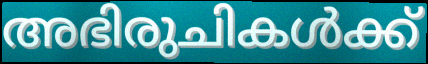
അഭിരുചികൾക്ക്